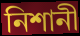
নিশানী